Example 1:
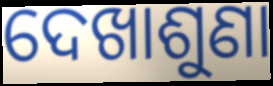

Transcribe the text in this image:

ଦେଖାଶୁଣା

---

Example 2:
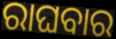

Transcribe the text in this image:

ରାଘବାର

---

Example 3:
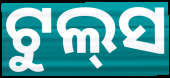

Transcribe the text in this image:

ଟୁଲ୍‌ସ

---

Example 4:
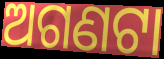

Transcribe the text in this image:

ଅଗଣଟା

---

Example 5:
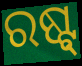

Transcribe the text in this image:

ରଷ୍ଟ୍